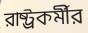
রাষ্ট্রকর্মীর